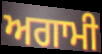
ਅਗਾਮੀ